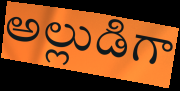
అల్లుడిగా